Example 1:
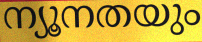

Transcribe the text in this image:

ന്യൂനതയും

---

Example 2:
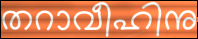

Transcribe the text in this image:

തറാവീഹിനു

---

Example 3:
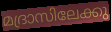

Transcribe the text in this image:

മദ്രാസിലേക്കു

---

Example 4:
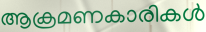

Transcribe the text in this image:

ആക്രമണകാരികൾ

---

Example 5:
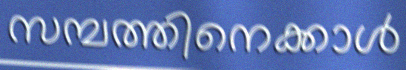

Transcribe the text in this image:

സമ്പത്തിനെക്കാൾ